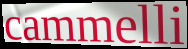
cammelli